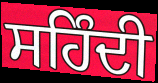
ਸਹਿੰਦੀ